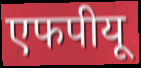
एफपीयू